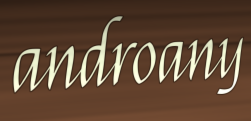
androany